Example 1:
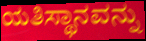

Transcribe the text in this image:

ಯತಿಸ್ಥಾನವನ್ನು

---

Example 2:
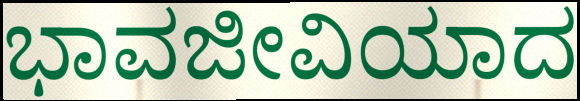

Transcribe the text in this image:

ಭಾವಜೀವಿಯಾದ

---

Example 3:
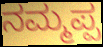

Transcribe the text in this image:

ನಮ್ಮಪ್ಪ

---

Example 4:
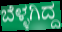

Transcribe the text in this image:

ಬೆಳ್ಳಗಿದ್ದ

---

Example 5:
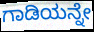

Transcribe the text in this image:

ಗಾಡಿಯನ್ನೇ